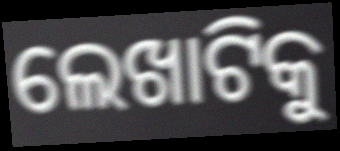
ଲେଖାଟିକୁ